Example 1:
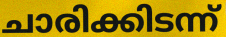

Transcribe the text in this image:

ചാരിക്കിടന്ന്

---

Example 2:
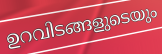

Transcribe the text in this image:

ഉറവിടങ്ങളുടെയും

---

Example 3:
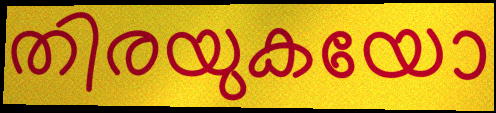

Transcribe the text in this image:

തിരയുകയോ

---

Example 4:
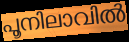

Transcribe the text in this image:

പൂനിലാവിൽ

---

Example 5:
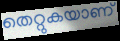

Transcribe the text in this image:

തെറ്റുകയാണ്